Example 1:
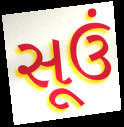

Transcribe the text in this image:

સૂઉં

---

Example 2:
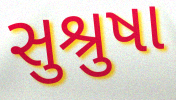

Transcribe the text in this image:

સુશ્રુષા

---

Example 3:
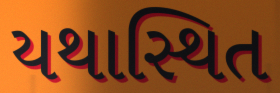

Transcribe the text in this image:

યથાસ્થિત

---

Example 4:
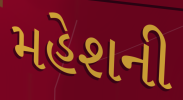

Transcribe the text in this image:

મહેશની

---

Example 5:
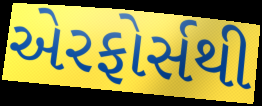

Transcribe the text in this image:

એરફોર્સથી